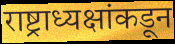
राष्ट्राध्यक्षांकडून